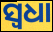
ସ୍ୱଧା